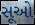
સૂઓ